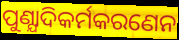
ପୁଣ୍ଯାଦିକର୍ମକରଣେନ